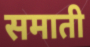
समाती